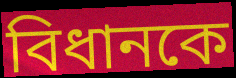
বিধানকে